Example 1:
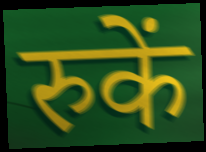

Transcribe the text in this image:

रुकें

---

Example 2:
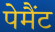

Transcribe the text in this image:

पेमैंट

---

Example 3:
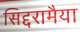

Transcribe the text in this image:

सिद्दरामैया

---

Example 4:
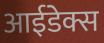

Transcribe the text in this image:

आईडेक्स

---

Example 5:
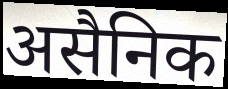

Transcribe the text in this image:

असैनिक